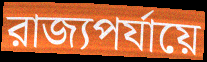
রাজ্যপর্যায়ে